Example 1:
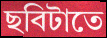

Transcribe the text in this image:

ছবিটাতে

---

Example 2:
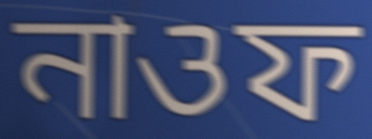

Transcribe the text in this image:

নাওফ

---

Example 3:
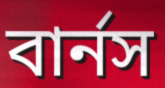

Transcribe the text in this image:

বার্নস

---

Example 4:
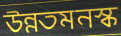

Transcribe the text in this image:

উন্নতমনস্ক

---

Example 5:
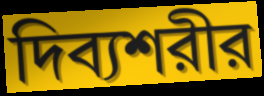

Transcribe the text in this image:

দিব্যশরীর